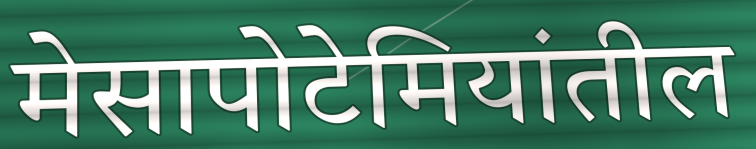
मेसापोटेमियांतील